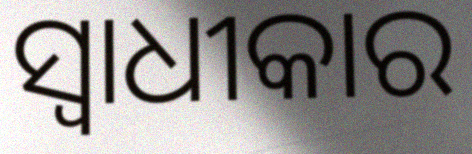
ସ୍ୱାଧୀକାର